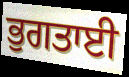
ਭੁਗਤਾਈ